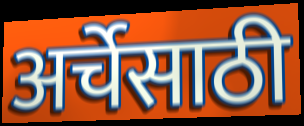
अर्चेसाठी